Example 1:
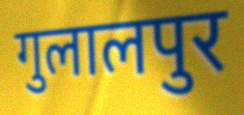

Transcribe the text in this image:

गुलालपुर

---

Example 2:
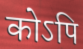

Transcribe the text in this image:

कोऽपि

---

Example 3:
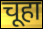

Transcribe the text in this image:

चूहा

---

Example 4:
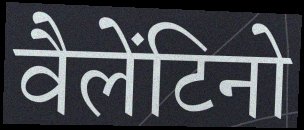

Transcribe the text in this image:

वैलेंटिनो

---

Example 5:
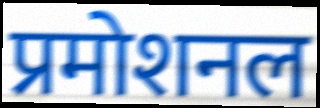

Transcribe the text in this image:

प्रमोशनल